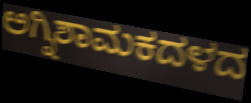
ಅಗ್ನಿಶಾಮಕದಳದ